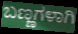
ಬಣ್ಣಗಳಾಗಿ